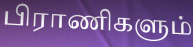
பிராணிகளும்